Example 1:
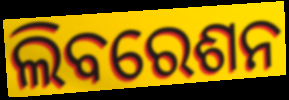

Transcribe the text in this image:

ଲିବରେଶନ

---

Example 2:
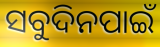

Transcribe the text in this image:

ସବୁଦିନପାଇଁ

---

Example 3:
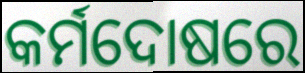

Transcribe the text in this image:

କର୍ମଦୋଷରେ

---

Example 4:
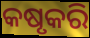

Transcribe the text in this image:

କଷୃକରି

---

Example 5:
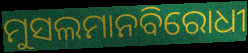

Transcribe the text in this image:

ମୁସଲମାନବିରୋଧୀ